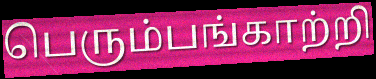
பெரும்பங்காற்றி